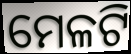
ମେଳଟି